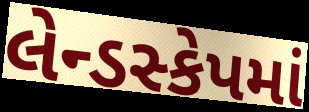
લેન્ડસ્કેપમાં